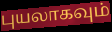
புயலாகவும்